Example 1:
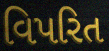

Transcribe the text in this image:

વિપરિત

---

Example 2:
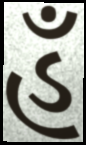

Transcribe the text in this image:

હઁ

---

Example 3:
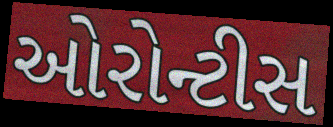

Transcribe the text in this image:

ઓરોન્ટીસ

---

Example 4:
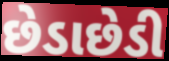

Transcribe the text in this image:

છેડાછેડી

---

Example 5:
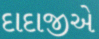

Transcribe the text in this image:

દાદાજીએ